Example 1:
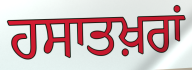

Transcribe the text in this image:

ਹਸਾਤਖ਼ਰਾਂ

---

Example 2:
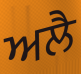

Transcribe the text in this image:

ਅਲੈ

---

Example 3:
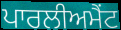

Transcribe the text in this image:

ਪਾਰਲੀਅਮੈਂਟ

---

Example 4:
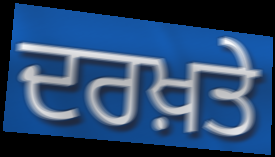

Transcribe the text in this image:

ਦਰਖ਼ਤੇ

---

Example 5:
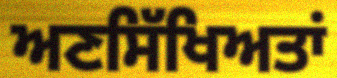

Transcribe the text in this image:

ਅਣਸਿੱਖਿਅਤਾਂ